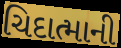
ચિદાત્માની